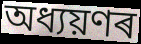
অধ্যয়ণৰ